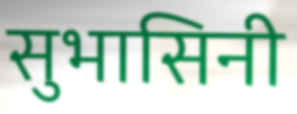
सुभासिनी